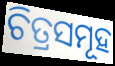
ଚିତ୍ରସମୂହ